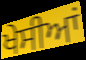
ਖੇਸੀਆਂ